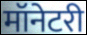
मॉनेटरी